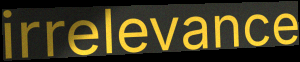
irrelevance